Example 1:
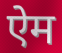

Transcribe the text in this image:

ऐम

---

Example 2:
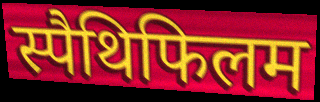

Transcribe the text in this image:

स्पैथिफिलम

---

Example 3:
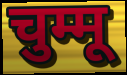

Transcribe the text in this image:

चुम्मू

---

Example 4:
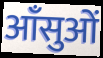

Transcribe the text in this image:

आँसुओं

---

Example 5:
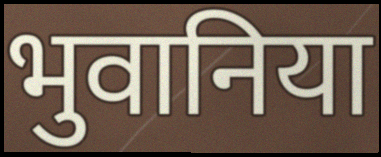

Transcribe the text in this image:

भुवानिया